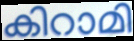
കിറാമി